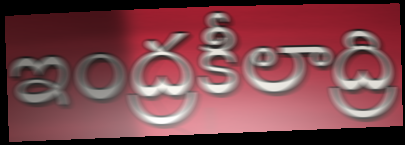
ఇంద్రకీలాద్రి